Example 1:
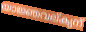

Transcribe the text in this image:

യാജ്ഞവല്ക്യന്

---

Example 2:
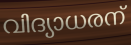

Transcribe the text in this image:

വിദ്യാധരന്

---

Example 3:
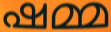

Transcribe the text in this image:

ഷമ്മ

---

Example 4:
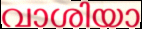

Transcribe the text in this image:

വാശിയാ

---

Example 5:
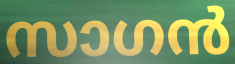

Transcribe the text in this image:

സാഗൻ